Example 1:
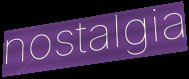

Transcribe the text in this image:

nostalgia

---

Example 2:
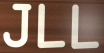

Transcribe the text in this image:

JLL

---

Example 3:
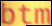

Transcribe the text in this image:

btm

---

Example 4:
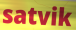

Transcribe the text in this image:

satvik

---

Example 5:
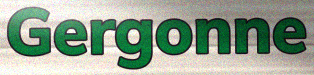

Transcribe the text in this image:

Gergonne